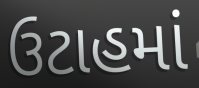
ઉટાહમાં